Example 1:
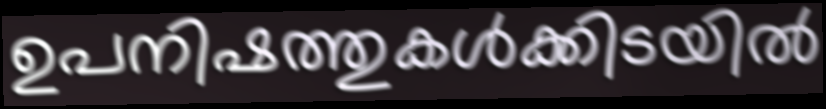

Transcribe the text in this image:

ഉപനിഷത്തുകൾക്കിടയിൽ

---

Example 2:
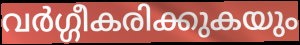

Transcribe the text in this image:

വർഗ്ഗീകരിക്കുകയും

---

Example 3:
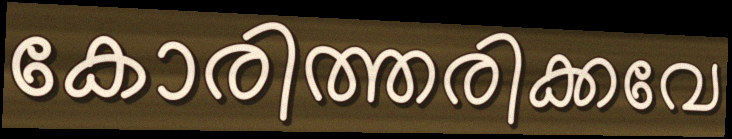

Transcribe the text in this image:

കോരിത്തരിക്കവേ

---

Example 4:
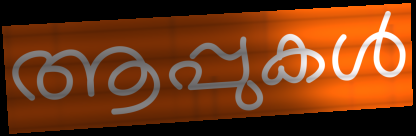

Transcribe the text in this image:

ആപ്പുകൾ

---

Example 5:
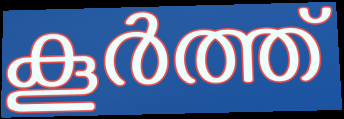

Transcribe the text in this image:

കൂർത്ത്